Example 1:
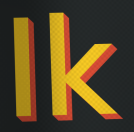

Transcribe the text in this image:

Ik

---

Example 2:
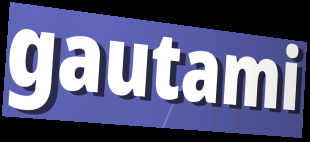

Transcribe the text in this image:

gautami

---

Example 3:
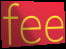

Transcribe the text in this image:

fee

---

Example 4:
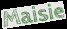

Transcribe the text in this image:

Maisie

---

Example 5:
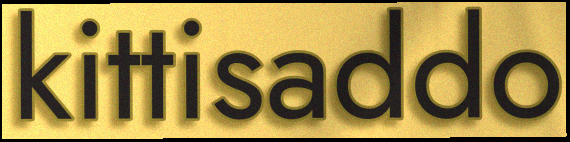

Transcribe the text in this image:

kittisaddo